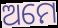
ଅମେ